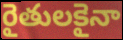
రైతులకైనా